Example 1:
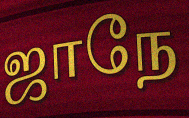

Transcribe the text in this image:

ஜாநே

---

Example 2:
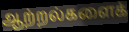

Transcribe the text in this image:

ஆற்றல்களைக்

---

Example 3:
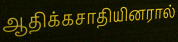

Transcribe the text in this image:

ஆதிக்கசாதியினரால்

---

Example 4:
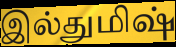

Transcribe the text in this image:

இல்துமிஷ்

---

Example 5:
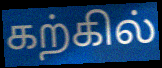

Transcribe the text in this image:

கற்கில்